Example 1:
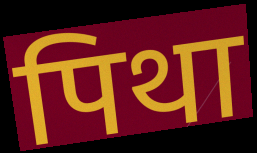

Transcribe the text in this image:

पिथा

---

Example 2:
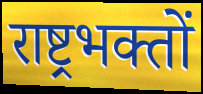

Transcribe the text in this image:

राष्ट्रभक्तों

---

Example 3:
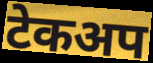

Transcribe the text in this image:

टेकअप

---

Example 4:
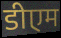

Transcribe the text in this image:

डीएम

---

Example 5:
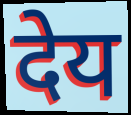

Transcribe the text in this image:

देय